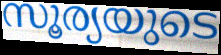
സൂര്യയുടെ